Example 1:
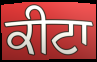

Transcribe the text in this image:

ਕੀਟਾ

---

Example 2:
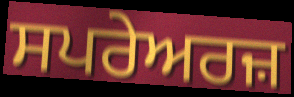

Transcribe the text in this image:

ਸਪਰੇਅਰਜ਼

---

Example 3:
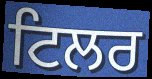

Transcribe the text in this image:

ਟਿਲਰ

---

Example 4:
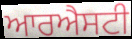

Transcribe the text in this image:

ਆਰਐਸਟੀ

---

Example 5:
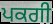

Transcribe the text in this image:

ਪਕਗੀ